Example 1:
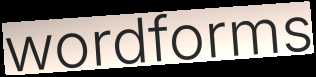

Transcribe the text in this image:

wordforms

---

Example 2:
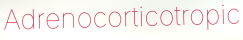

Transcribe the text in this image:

Adrenocorticotropic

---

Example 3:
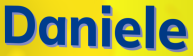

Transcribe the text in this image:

Daniele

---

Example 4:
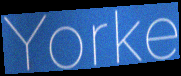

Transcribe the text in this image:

Yorke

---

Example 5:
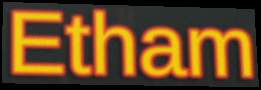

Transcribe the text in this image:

Etham